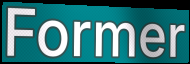
Former